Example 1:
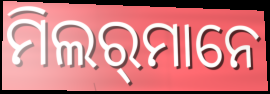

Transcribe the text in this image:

ମିଲର୍‌ମାନେ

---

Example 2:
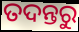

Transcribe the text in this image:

ତଦନ୍ତରୁ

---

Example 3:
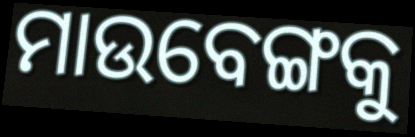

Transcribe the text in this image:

ମାଉବେଙ୍ଗକୁ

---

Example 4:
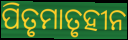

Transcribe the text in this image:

ପିତୃମାତୃହୀନ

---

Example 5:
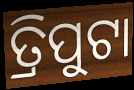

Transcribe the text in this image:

ତ୍ରିପୁଟା